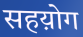
सहय़ोग